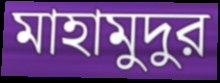
মাহামুদুর